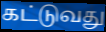
கட்டுவது